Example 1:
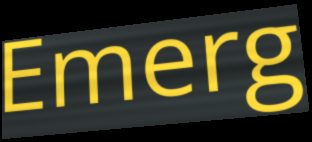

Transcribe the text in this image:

Emerg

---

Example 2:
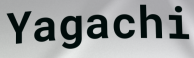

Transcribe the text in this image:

Yagachi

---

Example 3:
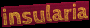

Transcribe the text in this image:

insularia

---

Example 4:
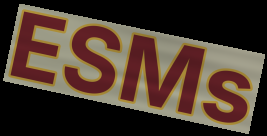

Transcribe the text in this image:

ESMs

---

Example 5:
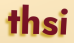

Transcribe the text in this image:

thsi